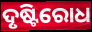
ଦୃଷ୍ଟିରୋଧ